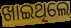
ଖାଇଥିଲେ